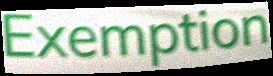
Exemption